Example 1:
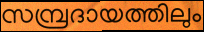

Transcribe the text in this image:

സമ്പ്രദായത്തിലും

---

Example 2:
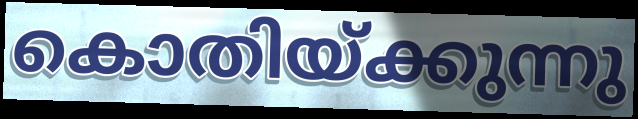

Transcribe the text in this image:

കൊതിയ്ക്കുന്നു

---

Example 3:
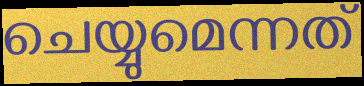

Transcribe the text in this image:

ചെയ്യുമെന്നത്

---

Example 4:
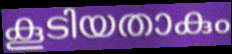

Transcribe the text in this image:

കൂടിയതാകും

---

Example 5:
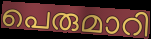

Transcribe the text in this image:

പെരുമാറി